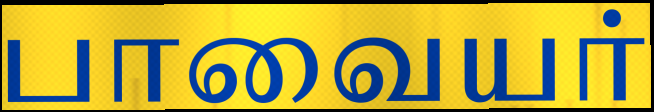
பாவையர்